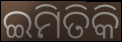
ଇମିତିକି